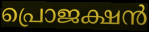
പ്രൊജക്ഷൻ